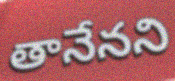
తానేనని